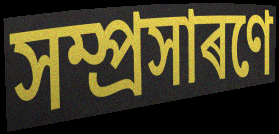
সম্প্ৰসাৰণে